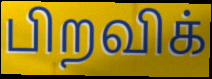
பிறவிக்